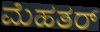
ಮೆಹತರ್